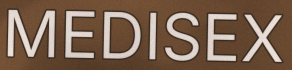
MEDISEX